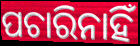
ପଚାରିନାହିଁ